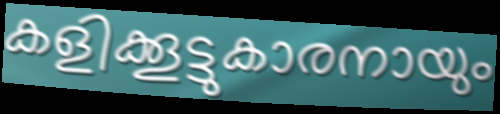
കളിക്കൂട്ടുകാരനായും